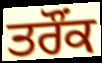
ਤਰੌਂਕ